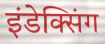
इंडेक्सिंग